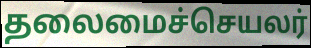
தலைமைச்செயலர்